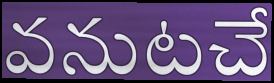
వనుటచే